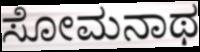
ಸೋಮನಾಥ